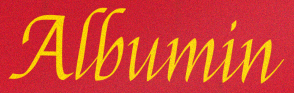
Albumin